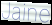
Jaine